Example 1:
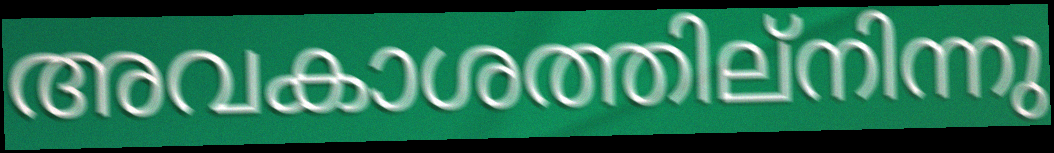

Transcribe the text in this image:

അവകാശത്തില്നിന്നു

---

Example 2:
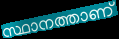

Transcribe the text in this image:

സ്ഥാനത്താണ്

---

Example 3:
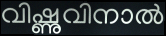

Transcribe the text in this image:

വിഷ്ണുവിനാൽ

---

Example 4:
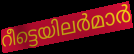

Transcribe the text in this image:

റീട്ടെയിലർമാർ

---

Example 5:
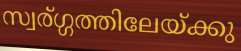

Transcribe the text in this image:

സ്വര്ഗ്ഗത്തിലേയ്ക്കു